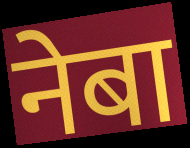
नेबा